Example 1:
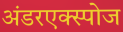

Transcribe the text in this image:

अंडरएक्स्पोज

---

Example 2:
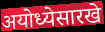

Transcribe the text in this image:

अयोध्येसारखे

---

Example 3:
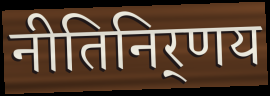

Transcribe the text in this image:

नीतिनिर्णय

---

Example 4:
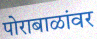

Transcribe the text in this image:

पोराबाळांवर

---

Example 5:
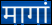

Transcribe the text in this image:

मागां